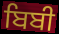
ਬਿਬੀ